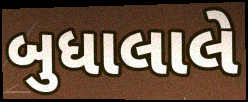
બુધાલાલે